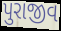
પુરાજીવ